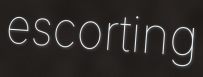
escorting